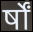
र्षों